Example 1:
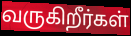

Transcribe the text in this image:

வருகிறீர்கள்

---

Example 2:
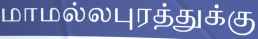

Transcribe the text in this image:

மாமல்லபுரத்துக்கு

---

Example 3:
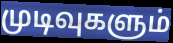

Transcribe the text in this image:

முடிவுகளும்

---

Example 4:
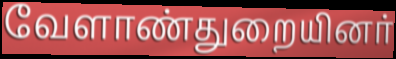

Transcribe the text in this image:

வேளாண்துறையினர்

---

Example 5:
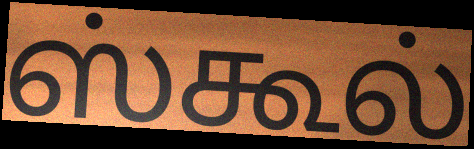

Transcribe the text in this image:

ஸ்கூல்